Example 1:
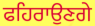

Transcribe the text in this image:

ਫਹਿਰਾਉਣਗੇ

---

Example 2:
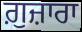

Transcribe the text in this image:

ਗ਼ੁਜ਼ਾਰਾ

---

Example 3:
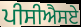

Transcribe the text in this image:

ਪੀਸੀਐਸਏ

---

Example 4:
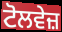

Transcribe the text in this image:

ਟੋਲਵੇਜ਼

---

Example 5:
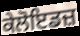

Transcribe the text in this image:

ਕੇਲੋਇਡਜ਼